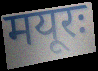
मयूरः